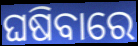
ଘଷିବାରେ